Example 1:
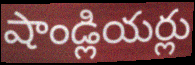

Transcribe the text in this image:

షాండ్లియర్లు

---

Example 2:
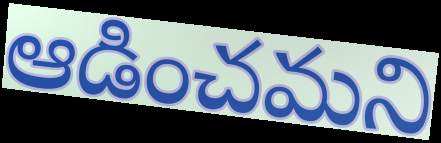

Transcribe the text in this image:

ఆడించమని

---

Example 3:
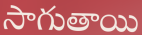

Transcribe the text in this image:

సాగుతాయి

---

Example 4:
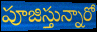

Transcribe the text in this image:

పూజిస్తున్నారో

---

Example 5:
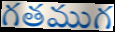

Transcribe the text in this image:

గతముగ